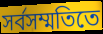
সর্বসম্মতিতে